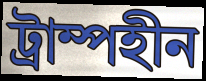
ট্রাম্পহীন